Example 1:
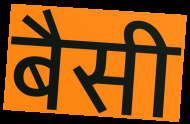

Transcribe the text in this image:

बैसी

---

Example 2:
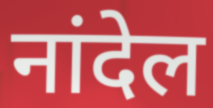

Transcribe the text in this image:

नांदेल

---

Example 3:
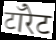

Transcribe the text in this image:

टॉरेट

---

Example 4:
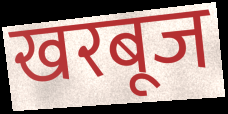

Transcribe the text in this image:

खरबूज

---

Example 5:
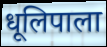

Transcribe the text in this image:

धूलिपाला